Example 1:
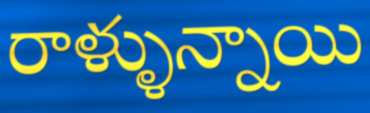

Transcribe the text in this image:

రాళ్ళున్నాయి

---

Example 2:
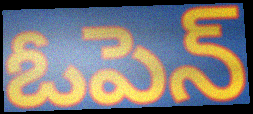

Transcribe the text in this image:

ఓపెన్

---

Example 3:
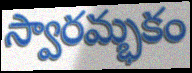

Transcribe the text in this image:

స్వారమ్భకం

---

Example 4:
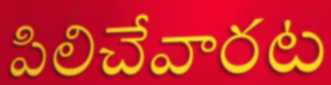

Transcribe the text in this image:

పిలిచేవారట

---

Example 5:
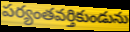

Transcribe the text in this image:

పర్యంతవర్తికుండును